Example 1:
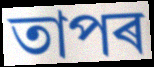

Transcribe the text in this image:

তাপৰ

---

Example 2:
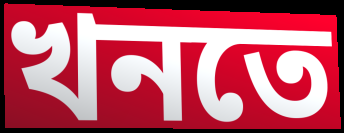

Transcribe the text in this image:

খনতে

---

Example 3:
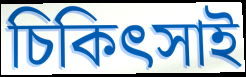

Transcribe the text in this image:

চিকিৎসাই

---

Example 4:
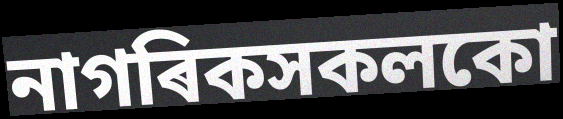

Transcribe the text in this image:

নাগৰিকসকলকো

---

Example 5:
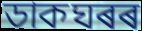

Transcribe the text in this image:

ডাকঘৰৰ